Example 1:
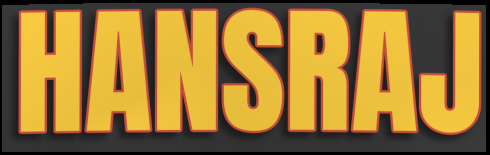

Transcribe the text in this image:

HANSRAJ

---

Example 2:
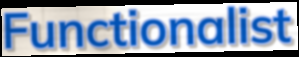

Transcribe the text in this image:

Functionalist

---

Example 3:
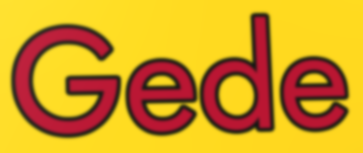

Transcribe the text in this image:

Gede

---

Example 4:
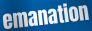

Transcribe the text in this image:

emanation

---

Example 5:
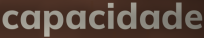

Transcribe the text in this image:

capacidade